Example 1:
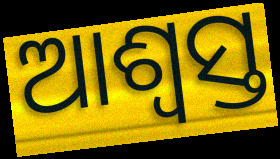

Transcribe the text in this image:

ଆଶ୍ବସ୍ତ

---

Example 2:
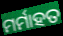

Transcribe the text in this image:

ମର୍ମାହତ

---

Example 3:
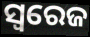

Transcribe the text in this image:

ସ୍ବରେଜ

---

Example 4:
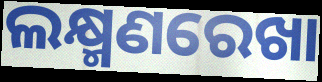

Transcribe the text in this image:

ଲକ୍ଷ୍ମଣରେଖା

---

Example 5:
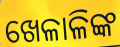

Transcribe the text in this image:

ଖେଳାଳିଙ୍କ